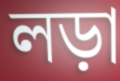
লড়া